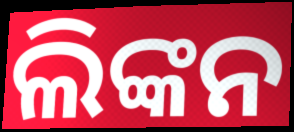
ଲିଙ୍କନ